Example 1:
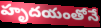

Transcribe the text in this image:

హృదయంతోనే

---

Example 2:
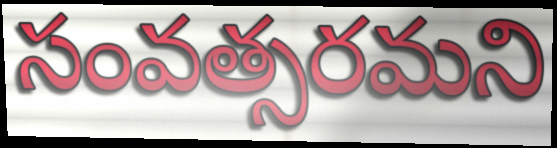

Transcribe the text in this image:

సంవత్సరమని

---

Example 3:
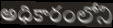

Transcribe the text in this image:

అధికారంలోని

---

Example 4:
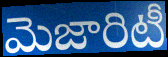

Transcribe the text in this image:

మెజారిటీ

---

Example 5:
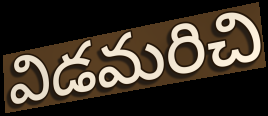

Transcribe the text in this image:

విడమరిచి